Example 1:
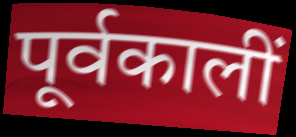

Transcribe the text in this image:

पूर्वकालीं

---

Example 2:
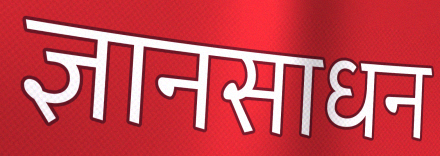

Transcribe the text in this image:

ज्ञानसाधन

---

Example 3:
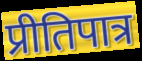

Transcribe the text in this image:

प्रीतिपात्र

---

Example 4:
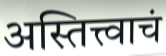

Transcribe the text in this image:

अस्तित्त्वाचं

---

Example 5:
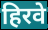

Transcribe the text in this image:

हिरवे